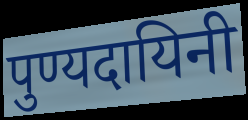
पुण्यदायिनी